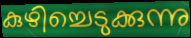
കുഴിച്ചെടുക്കുന്നു